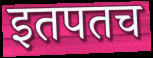
इतपतच